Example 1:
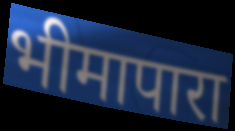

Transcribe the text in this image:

भीमापारा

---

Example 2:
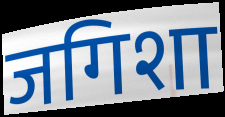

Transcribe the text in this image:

जगिशा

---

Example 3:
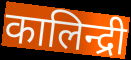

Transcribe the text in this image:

कालिन्द्री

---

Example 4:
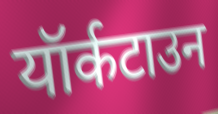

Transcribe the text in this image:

यॉर्कटाउन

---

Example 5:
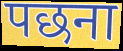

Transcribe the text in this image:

पछना